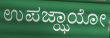
ಉಪಜ್ಝಾಯೋ